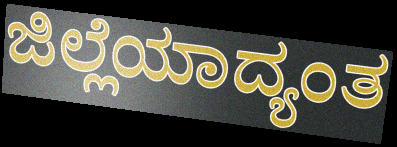
ಜಿಲ್ಲೆಯಾದ್ಯಂತ